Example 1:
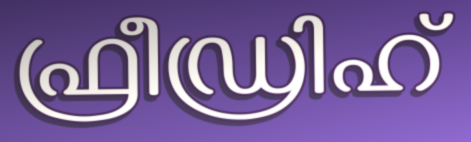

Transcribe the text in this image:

ഫ്രീഡ്രിഹ്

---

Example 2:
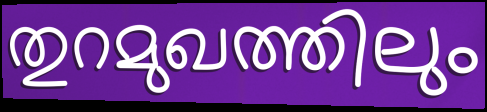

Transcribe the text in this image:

തുറമുഖത്തിലും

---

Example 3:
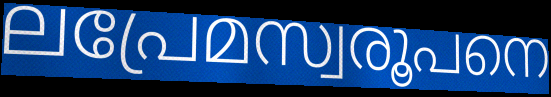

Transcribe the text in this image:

ലപ്രേമസ്വരൂപനെ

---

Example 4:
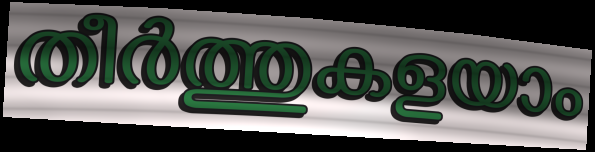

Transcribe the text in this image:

തീർത്തുകളയാം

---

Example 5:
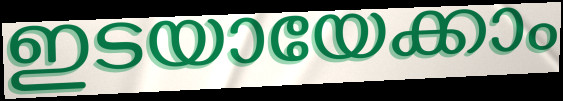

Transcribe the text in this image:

ഇടയായേക്കാം